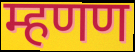
म्हणण